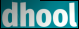
dhool